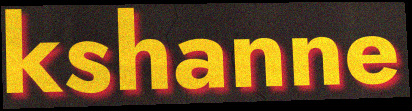
kshanne